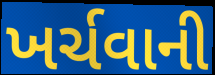
ખર્ચવાની